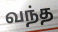
வந்த